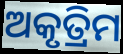
ଅକୃତ୍ରିମ